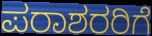
ಪರಾಶರರಿಗೆ